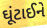
ઘૂંટાઈને